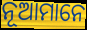
ନୂଆମାନେ